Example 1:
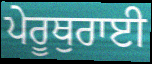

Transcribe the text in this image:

ਪੇਰੂਥੁਰਾਈ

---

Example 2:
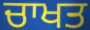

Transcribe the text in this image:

ਚਾਖਤ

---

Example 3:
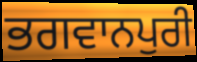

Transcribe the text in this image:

ਭਗਵਾਨਪੁਰੀ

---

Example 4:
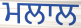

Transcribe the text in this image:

ਮਲਾਲ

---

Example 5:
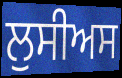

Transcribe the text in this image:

ਲੁਸੀਅਸ